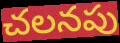
చలనపు